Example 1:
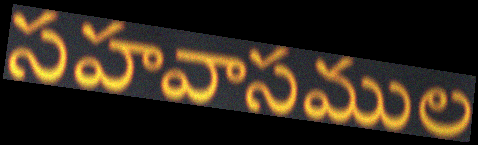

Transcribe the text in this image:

సహవాసముల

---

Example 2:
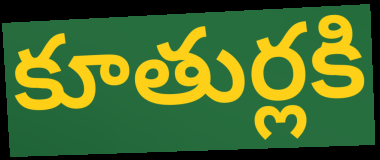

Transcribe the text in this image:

కూతుర్లకి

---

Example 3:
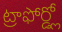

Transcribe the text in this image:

ట్రాఫోర్డ్లో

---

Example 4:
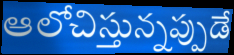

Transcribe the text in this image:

ఆలోచిస్తున్నప్పుడే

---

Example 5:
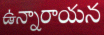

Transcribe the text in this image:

ఉన్నారాయన